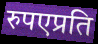
रुपएप्रति